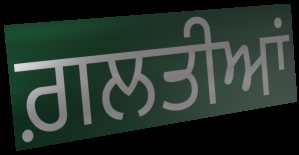
ਗ਼ਲਤੀਆਂ